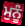
ਮੁਨੂੰ